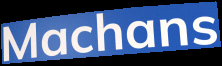
Machans